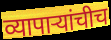
व्यापाऱ्यांचीच